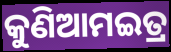
କୁଣିଆମଇତ୍ର